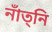
নাঁত্‌নি